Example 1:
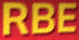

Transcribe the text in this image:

RBE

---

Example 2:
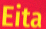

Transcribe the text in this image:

Eita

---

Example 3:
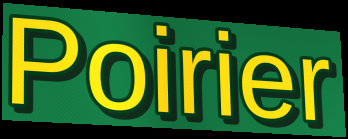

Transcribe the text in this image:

Poirier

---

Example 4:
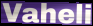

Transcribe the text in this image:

Vaheli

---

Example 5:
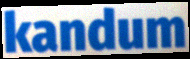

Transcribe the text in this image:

kandum